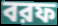
বরফ